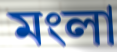
মংলা